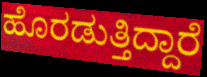
ಹೊರಡುತ್ತಿದ್ದಾರೆ